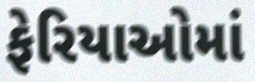
ફેરિયાઓમાં